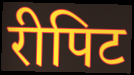
रीपिट